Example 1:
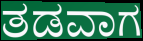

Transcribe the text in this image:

ತಡವಾಗ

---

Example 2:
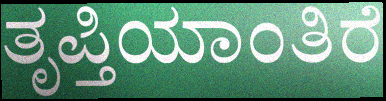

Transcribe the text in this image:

ತೃಪ್ತಿಯಾಂತಿರೆ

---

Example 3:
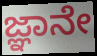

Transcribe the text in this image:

ಜ್ಞಾನೇ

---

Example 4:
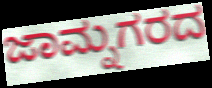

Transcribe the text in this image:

ಜಾಮ್ನಗರದ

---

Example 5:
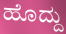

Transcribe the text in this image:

ಹೊದ್ದು